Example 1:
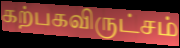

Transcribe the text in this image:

கற்பகவிருட்சம்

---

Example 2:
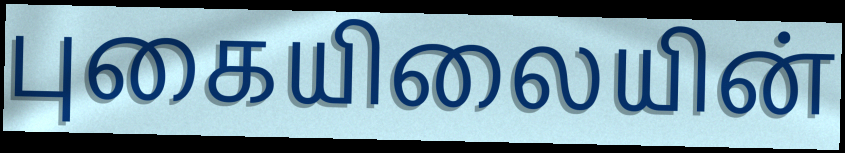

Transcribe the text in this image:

புகையிலையின்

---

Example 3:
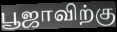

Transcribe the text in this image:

பூஜாவிற்கு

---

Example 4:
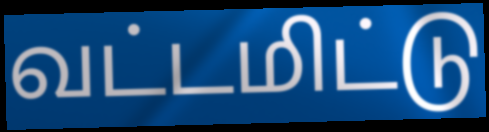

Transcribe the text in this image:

வட்டமிட்டு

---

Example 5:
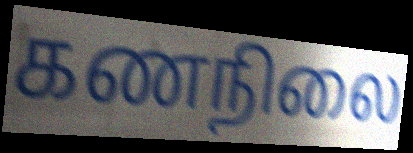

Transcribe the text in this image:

கணநிலை